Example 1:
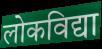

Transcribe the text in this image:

लोकविद्या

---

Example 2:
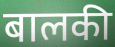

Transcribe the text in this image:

बालकी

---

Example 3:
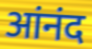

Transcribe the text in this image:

आंनंद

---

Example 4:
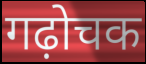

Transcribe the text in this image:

गढ़ोचक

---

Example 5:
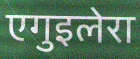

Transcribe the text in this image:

एगुइलेरा